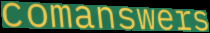
comanswers